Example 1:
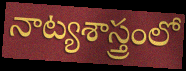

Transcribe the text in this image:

నాట్యశాస్త్రంలో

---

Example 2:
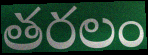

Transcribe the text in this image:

తరలం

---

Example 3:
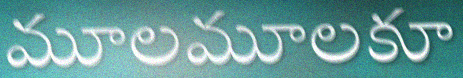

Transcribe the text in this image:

మూలమూలకూ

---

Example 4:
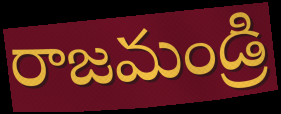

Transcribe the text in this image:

రాజమండ్రి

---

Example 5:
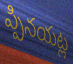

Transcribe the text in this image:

ప్పినయట్ల